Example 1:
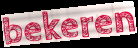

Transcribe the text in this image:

bekeren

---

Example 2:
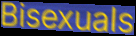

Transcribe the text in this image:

Bisexuals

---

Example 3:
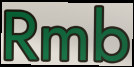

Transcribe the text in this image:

Rmb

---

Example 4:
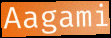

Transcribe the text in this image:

Aagami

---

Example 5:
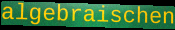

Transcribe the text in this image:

algebraischen